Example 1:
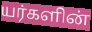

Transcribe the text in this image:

யர்களின்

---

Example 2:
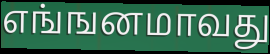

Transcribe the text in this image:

எங்ஙனமாவது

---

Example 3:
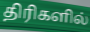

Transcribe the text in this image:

திரிகளில்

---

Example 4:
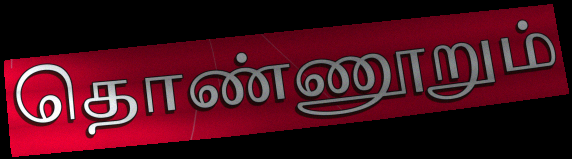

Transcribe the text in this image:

தொண்ணூறும்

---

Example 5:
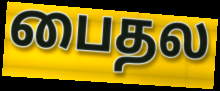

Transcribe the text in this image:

பைதல